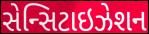
સેન્સિટાઇઝેશન